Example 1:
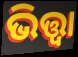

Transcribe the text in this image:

ଭିତ୍ତ୍ୱା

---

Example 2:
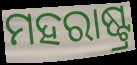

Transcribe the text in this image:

ମହରାଷ୍ଟ୍ର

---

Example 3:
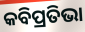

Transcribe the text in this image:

କବିପ୍ରତିଭା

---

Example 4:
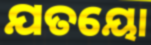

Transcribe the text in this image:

ଯତୟୋ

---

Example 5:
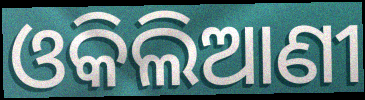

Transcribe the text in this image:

ଓକିଲିଆଣୀ